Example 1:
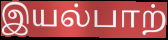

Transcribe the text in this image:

இயல்பாற்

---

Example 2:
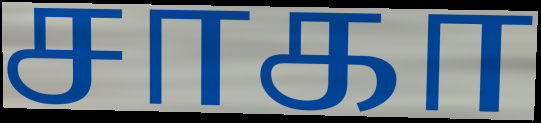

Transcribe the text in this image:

சாகா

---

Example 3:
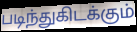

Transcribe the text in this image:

படிந்துகிடக்கும்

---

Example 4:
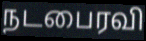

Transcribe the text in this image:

நடபைரவி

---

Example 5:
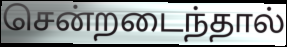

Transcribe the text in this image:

சென்றடைந்தால்